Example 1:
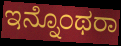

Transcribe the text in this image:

ಇನ್ನೊಂಥರಾ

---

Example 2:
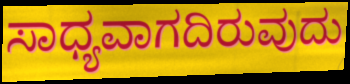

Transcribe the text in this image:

ಸಾಧ್ಯವಾಗದಿರುವುದು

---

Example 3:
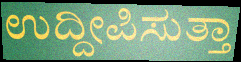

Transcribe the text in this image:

ಉದ್ದೀಪಿಸುತ್ತಾ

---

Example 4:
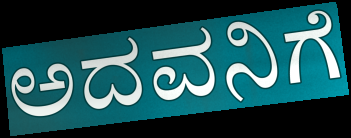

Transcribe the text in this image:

ಅದವನಿಗೆ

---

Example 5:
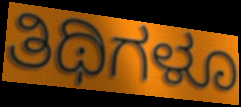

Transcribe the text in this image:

ತಿಥಿಗಳೂ